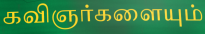
கவிஞர்களையும்